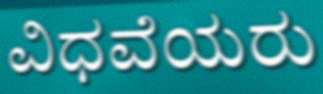
ವಿಧವೆಯರು